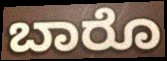
ಬಾರೊ